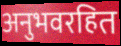
अनुभवरहित